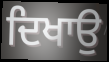
ਦਿਖਾਉ